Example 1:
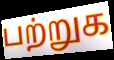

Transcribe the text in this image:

பற்றுக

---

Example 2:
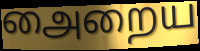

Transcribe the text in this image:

அைறைய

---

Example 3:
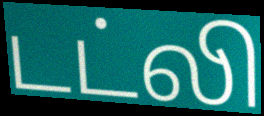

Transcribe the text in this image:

டட்லி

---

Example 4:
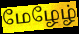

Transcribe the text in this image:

மேழேழ்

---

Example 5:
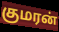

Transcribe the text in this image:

குமரன்